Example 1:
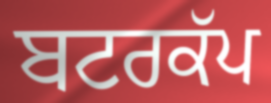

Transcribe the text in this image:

ਬਟਰਕੱਪ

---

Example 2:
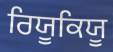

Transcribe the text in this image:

ਰਿਯੂਕਿਯੂ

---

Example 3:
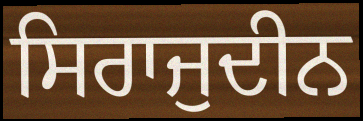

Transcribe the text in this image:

ਸਿਰਾਜੁਦੀਨ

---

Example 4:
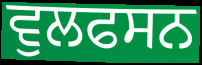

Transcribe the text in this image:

ਵੁਲਫਸਨ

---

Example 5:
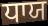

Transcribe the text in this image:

ਧਾਯ